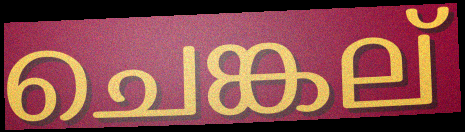
ചെങ്കല്